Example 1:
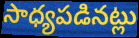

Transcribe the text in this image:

సాధ్యపడినట్లు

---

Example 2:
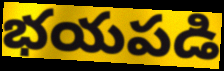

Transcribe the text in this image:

భయపడి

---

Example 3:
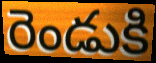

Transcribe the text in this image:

రెండుకి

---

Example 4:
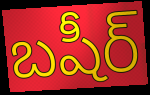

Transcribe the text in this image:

బషీర్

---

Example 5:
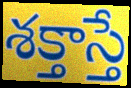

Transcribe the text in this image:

శక్తాస్తే